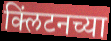
क्लिंटनच्या